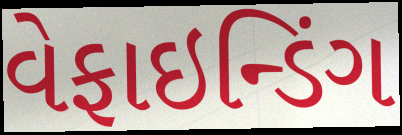
વેફાઇન્ડિંગ